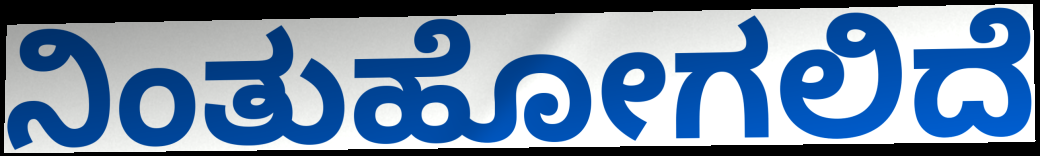
ನಿಂತುಹೋಗಲಿದೆ